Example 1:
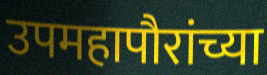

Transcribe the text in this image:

उपमहापौरांच्या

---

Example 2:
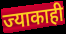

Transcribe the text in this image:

ज्याकाही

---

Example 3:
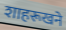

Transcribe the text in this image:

शाहरूखने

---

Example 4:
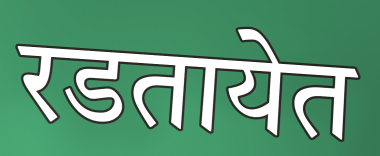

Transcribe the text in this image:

रडतायेत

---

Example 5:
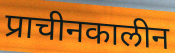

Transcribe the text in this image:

प्राचीनकालीन